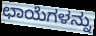
ಛಾಯೆಗಳನ್ನು